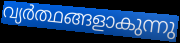
വ്യർത്ഥങ്ങളാകുന്നു